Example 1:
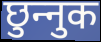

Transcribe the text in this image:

छुन्नुक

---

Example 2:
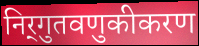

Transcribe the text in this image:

निर्गुतवणुकीकरण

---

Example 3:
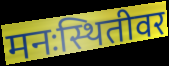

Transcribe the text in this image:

मनःस्थितीवर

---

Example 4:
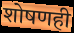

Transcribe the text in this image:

शोषणही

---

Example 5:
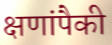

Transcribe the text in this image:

क्षणांपैकी